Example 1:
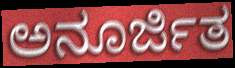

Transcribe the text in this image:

ಅನೂರ್ಜಿತ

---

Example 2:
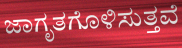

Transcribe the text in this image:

ಜಾಗೃತಗೊಳಿಸುತ್ತವೆ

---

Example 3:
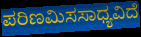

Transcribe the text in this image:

ಪರಿಣಮಿಸಸಾಧ್ಯವಿದೆ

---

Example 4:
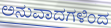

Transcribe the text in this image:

ಅನುವಾದಗಳಿಂದ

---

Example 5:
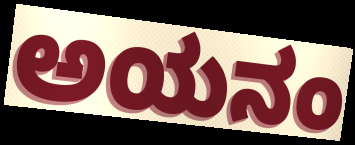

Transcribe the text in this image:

ಅಯನಂ